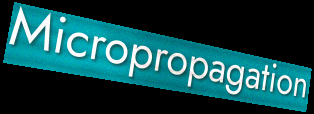
Micropropagation